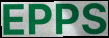
EPPS